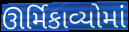
ઊર્મિકાવ્યોમાં